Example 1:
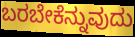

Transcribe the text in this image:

ಬರಬೇಕೆನ್ನುವುದು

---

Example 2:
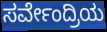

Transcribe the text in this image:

ಸರ್ವೇಂದ್ರಿಯ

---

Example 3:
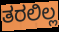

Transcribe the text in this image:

ತರಲಿಲ್ಲ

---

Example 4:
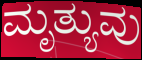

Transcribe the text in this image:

ಮೃತ್ಯುವು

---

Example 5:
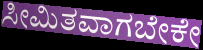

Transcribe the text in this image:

ಸೀಮಿತವಾಗಬೇಕೇ